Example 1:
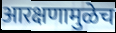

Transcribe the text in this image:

आरक्षणामुळेच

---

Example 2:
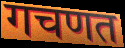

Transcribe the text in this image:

गचणत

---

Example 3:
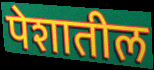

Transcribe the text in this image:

पेशातील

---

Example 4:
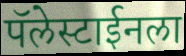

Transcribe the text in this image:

पॅलेस्टाईनला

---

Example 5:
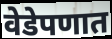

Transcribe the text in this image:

वेडेपणात